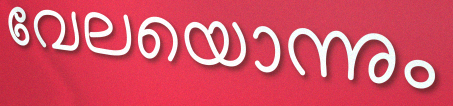
വേലയൊന്നും